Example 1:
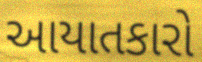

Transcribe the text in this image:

આયાતકારો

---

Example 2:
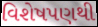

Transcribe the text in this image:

વિશેષપણથી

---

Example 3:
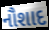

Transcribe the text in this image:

નૌશાદ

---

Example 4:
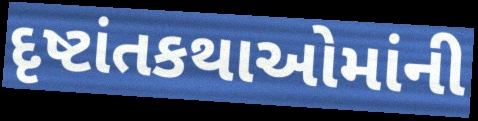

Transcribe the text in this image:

દૃષ્ટાંતકથાઓમાંની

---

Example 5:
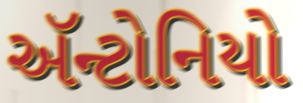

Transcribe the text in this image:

ઍન્ટોનિયો